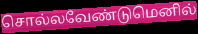
சொல்லவேண்டுமெனில்